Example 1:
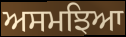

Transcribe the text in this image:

ਅਸਮਝਿਆ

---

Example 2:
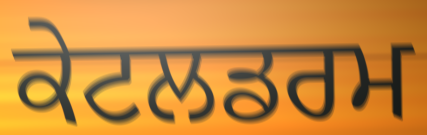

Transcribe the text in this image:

ਕੇਟਲਡਰਮ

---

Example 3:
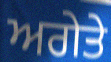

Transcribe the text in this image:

ਅਗੇਤੇ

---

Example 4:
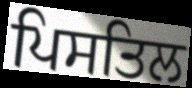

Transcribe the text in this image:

ਪਿਸਤਿਲ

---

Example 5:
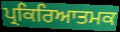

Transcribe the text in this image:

ਪ੍ਰਕਿਰਿਆਤਮਕ